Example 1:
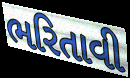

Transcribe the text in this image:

ભરિતાવી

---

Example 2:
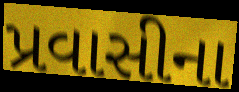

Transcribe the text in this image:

પ્રવાસીના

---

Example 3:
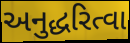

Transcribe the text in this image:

અનુદ્ધરિત્વા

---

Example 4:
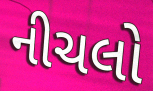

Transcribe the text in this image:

નીચલો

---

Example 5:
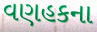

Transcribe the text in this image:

વણહકના